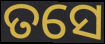
ତସେ